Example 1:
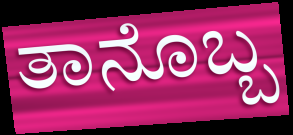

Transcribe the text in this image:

ತಾನೊಬ್ಬ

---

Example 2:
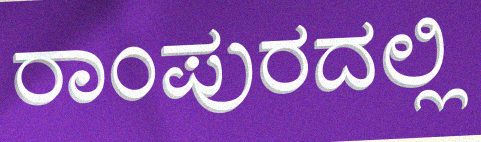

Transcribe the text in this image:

ರಾಂಪುರದಲ್ಲಿ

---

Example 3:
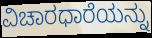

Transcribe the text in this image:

ವಿಚಾರಧಾರೆಯನ್ನು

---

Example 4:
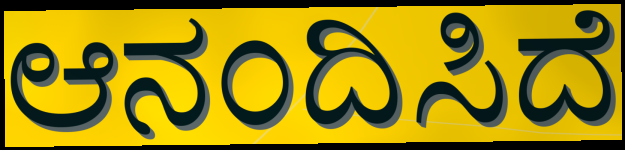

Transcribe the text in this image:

ಆನಂದಿಸಿದೆ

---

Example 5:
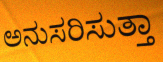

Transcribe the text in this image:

ಅನುಸರಿಸುತ್ತಾ